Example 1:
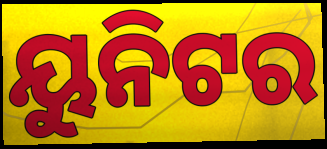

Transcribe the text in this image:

ୟୁନିଟର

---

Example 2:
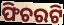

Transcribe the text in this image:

ଫିଚରଟି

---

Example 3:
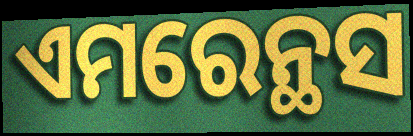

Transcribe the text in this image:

ଏମରେନ୍ଥସ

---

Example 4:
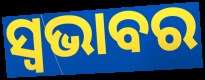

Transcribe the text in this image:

ସ୍ୱଭାବର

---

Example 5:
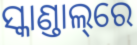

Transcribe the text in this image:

ସ୍କାଣ୍ଡାଲ୍‌ରେ